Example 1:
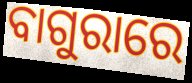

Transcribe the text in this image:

ବାଗୁରାରେ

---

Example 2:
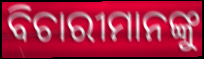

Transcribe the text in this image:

ବିଚାରୀମାନଙ୍କୁ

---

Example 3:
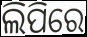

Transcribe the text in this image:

ଲିପିରେ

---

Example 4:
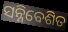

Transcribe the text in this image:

ସନ୍ନିବେଶିତ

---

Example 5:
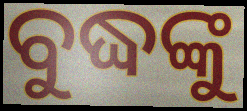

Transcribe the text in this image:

ବୁଦ୍ଧଙ୍କୁ